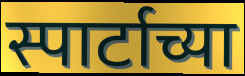
स्पार्टाच्या